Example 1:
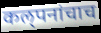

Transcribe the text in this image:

कल्पनांचाच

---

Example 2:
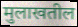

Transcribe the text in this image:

मुलाखतील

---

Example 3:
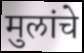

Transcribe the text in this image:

मुलांचे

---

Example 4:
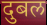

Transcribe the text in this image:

दुबल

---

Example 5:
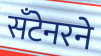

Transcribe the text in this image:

सँटेनरने